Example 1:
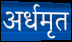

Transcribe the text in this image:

अर्धमृत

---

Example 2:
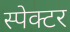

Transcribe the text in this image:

स्पेक्टर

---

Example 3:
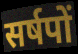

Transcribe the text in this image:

सर्षपों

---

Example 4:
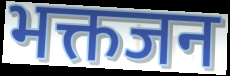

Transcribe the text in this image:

भक्तजन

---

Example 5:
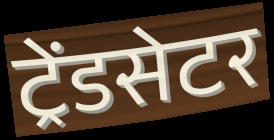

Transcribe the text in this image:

ट्रेंडसेटर